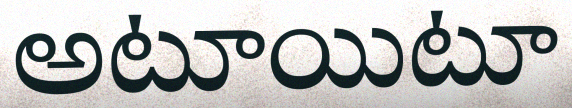
అటూయిటూ